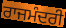
ਰਾਜਮੰਦਰੀ